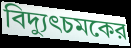
বিদ্যুৎচমকের